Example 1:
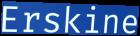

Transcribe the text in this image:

Erskine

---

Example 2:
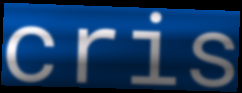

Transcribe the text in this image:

cris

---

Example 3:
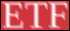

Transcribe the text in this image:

ETF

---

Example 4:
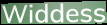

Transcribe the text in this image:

Widdess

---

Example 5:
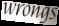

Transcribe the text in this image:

wrongs